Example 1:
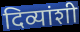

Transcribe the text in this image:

दिव्यांशी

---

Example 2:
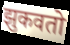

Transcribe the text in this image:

झुकवतो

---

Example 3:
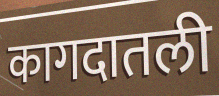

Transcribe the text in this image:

कागदातली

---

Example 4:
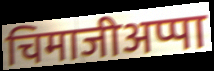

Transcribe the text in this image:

चिमाजीअप्पा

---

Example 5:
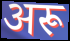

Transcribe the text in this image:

अरू